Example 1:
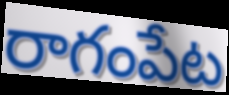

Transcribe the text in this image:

రాగంపేట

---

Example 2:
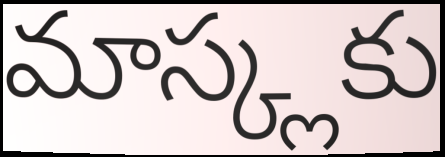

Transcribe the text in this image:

మాస్క్లకు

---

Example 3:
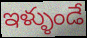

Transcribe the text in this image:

ఇళ్ళుండే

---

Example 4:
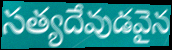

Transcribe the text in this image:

సత్యదేవుడవైన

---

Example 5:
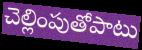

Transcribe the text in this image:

చెల్లింపుతోపాటు